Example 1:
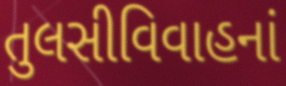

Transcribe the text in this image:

તુલસીવિવાહનાં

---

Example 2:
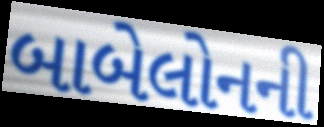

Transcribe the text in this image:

બાબેલોનની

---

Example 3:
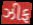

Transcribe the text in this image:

ઝીફ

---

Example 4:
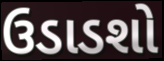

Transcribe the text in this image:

ઉડાડશો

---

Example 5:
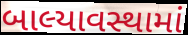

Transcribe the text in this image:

બાલ્યાવસ્થામાં